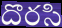
దొరసి